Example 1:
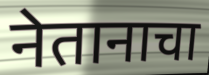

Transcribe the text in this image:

नेतानाचा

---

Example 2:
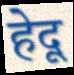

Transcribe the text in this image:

हेदू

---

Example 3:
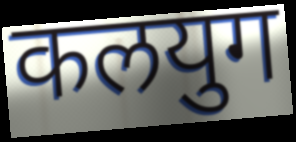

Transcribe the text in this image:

कलयुग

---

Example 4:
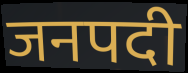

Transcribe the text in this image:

जनपदी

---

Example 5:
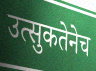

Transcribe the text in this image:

उत्सुकतेनेच